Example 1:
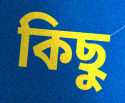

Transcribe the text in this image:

কিছু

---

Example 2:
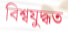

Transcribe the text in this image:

বিশ্বযুদ্ধত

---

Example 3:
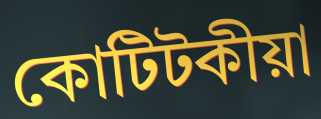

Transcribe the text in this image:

কোটিটকীয়া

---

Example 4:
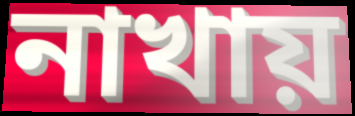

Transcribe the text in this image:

নাখায়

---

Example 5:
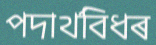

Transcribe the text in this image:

পদাৰ্থবিধৰ